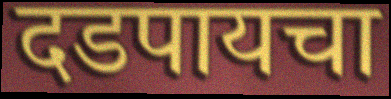
दडपायचा